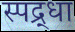
स्पद्र्धा